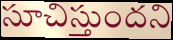
సూచిస్తుందని